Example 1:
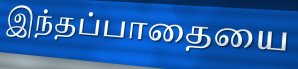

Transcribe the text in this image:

இந்தப்பாதையை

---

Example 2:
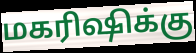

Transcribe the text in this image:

மகரிஷிக்கு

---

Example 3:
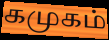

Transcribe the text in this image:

கமுகம்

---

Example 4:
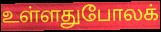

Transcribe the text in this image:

உள்ளதுபோலக்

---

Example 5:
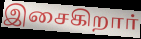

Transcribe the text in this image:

இசைகிறார்